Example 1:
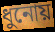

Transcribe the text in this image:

ধুনোয়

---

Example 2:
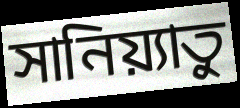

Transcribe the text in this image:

সানিয়্যাতু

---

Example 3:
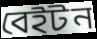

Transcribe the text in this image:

বেইটন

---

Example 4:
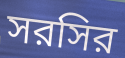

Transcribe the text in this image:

সরসির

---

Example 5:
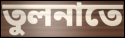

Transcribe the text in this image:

তুলনাতে